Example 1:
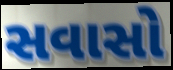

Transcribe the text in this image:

સવાસો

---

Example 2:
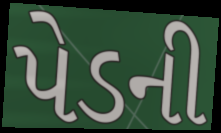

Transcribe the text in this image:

પેડની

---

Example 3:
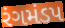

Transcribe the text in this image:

રંગમંડપ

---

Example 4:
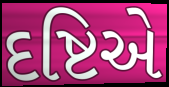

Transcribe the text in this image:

દષ્ટિએ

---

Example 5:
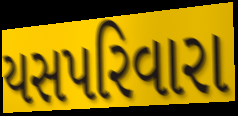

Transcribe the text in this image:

યસપરિવારા